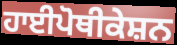
ਹਾਈਪੋਥੀਕੇਸ਼ਨ